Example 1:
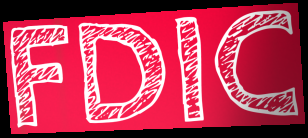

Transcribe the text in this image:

FDIC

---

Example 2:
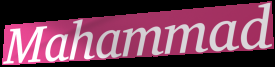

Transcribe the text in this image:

Mahammad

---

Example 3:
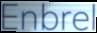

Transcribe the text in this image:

Enbrel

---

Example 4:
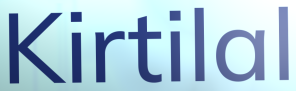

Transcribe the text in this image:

Kirtilal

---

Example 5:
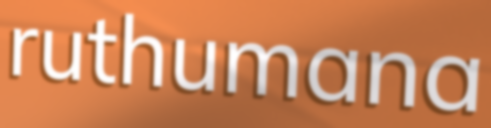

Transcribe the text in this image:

ruthumana